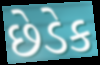
છેડેક